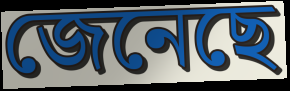
জেনেছে